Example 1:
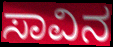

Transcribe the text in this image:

ಸಾವಿನ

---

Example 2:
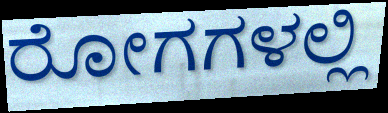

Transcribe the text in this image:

ರೋಗಗಳಲ್ಲಿ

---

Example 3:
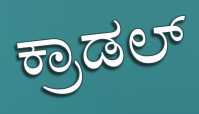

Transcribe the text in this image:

ಕ್ರಾಡಲ್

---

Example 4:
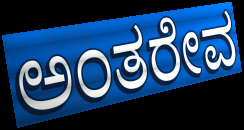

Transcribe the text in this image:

ಅಂತರೇವ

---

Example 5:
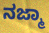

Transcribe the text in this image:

ನಜ್ಮಾ